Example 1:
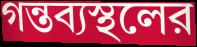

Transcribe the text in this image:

গন্তব্যস্থলের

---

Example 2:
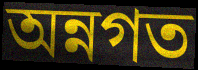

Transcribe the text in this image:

অন্নগত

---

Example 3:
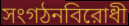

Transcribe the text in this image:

সংগঠনবিরোধী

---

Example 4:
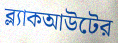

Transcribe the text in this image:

ব্ল্যাকআউটের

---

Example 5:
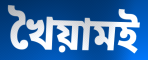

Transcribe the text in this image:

খৈয়ামই